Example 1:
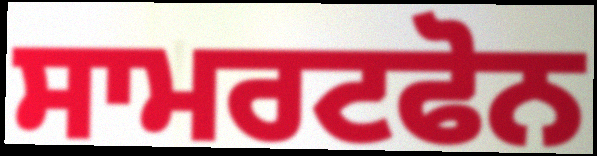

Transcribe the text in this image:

ਸਾਮਰਟਫੋਨ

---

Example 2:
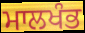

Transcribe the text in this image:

ਮਾਲਖੰਭ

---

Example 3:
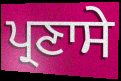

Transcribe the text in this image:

ਪ੍ਰਣਾਸੇ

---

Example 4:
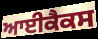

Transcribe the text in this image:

ਆਈਕੈਕਸ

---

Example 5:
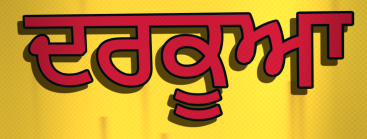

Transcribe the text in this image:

ਦਰਕੂਆ